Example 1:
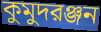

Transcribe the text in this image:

কুমুদরঞ্জন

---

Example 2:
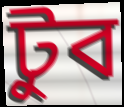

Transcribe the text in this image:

টুব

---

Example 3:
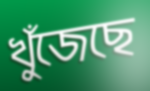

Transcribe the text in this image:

খুঁজেছে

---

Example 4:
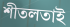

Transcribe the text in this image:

শীতলতাই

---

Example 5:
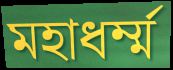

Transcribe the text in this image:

মহাধর্ম্ম